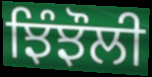
ਝਿੰਝੌਲੀ